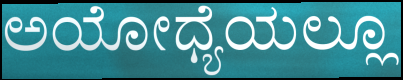
ಅಯೋಧ್ಯೆಯಲ್ಲೂ